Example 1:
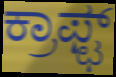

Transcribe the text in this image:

ಕ್ರಾಫ್ಟ್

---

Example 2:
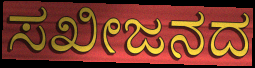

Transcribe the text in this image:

ಸಖೀಜನದ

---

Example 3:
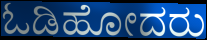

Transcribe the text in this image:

ಓಡಿಹೋದರು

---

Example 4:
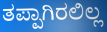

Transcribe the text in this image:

ತಪ್ಪಾಗಿರಲಿಲ್ಲ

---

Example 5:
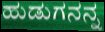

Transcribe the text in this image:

ಹುಡುಗನನ್ನ